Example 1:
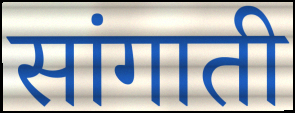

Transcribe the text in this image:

सांगाती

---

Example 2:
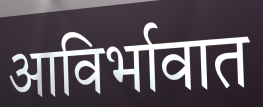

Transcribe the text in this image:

आविर्भावात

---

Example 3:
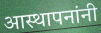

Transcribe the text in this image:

आस्थापनांनी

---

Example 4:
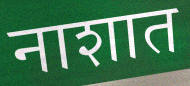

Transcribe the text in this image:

नाशात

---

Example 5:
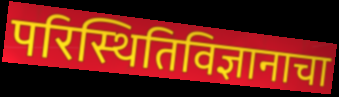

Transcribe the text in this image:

परिस्थितिविज्ञानाचा